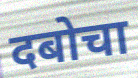
दबोचा